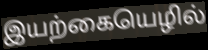
இயற்கையெழில்